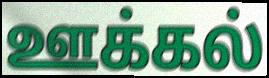
ஊக்கல்